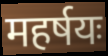
महर्षयः